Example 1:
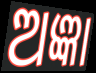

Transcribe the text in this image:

ଅଜ୍ଞା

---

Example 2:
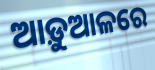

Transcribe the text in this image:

ଆଡ଼ୁଆଳରେ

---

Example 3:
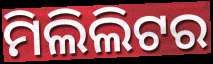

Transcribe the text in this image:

ମିଲିଲିଟର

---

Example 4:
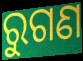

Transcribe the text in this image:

ରୁଗଣ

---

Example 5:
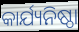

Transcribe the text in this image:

କାର୍ଯ୍ୟନିଷ୍ଠା